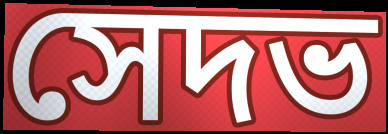
সেদভ